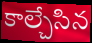
కాల్చేసిన